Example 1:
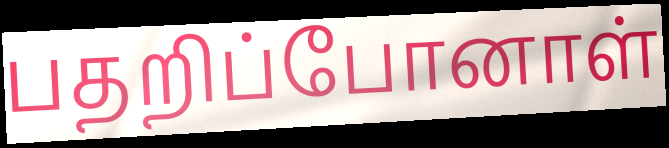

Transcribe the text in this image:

பதறிப்போனாள்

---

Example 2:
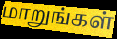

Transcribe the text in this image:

மாறுங்கள்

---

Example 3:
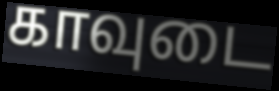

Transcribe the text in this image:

காவுடை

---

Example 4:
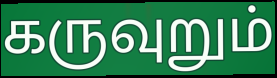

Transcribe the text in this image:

கருவுறும்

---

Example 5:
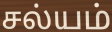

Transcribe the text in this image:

சல்யம்